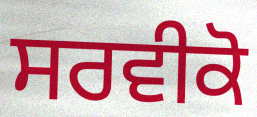
ਸਰਵੀਕੋ